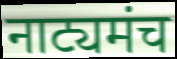
नाट्यमंच